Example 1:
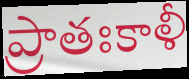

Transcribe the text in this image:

ప్రాతఃకాళీ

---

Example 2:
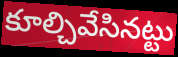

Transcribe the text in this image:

కూల్చివేసినట్టు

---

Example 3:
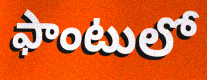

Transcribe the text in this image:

ఫాంటులో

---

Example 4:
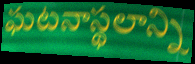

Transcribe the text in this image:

ఘటనాస్థలాన్ని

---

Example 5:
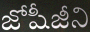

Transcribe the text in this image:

జోషీజీని